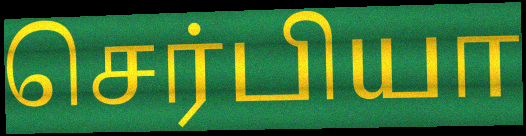
செர்பியா